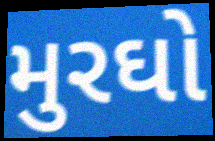
મુરઘો